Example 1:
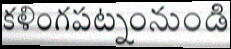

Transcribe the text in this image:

కళింగపట్నంనుండి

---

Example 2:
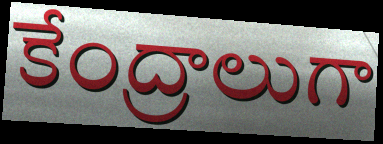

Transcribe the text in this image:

కేంద్రాలుగా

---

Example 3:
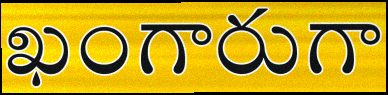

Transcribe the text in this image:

ఖంగారుగా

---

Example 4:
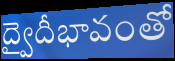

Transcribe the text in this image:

ద్వైదీభావంతో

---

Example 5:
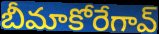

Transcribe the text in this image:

బీమాకోరేగావ్